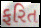
ફરિત